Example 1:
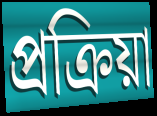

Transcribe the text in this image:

প্ৰক্ৰিয়া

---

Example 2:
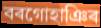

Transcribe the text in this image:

বৰগোহাঞিৰ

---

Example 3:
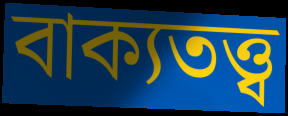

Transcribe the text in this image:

বাক্যতত্ত্ব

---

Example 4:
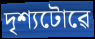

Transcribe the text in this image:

দৃশ্যটোৱে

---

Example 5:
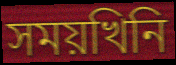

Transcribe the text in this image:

সময়খিনি